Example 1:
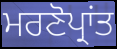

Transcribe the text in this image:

ਮਰਣੋਪ੍ਰਾਂਤ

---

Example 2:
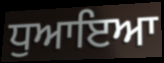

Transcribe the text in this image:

ਧੁਆਇਆ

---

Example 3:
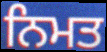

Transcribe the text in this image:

ਨਿਮਤ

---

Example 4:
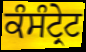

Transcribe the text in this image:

ਕੰਸੰਟ੍ਰੇਟ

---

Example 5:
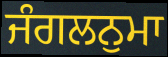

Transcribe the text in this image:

ਜੰਗਲਨੁਮਾ